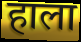
हाला